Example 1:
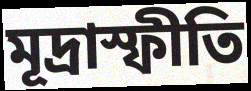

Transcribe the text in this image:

মূদ্রাস্ফীতি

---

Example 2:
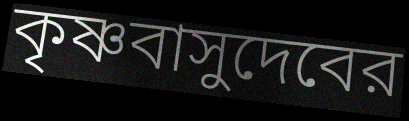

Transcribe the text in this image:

কৃষ্ণবাসুদেবের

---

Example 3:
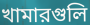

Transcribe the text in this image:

খামারগুলি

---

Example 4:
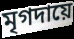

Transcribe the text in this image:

মৃগদায়ে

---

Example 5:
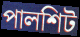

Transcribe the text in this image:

পালশিট